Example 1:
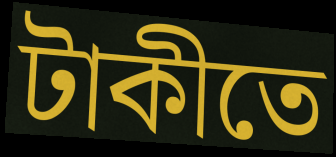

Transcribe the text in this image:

টাকীতে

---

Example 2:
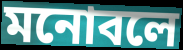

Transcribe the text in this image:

মনোবলে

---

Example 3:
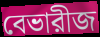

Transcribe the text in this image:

বেভারীজ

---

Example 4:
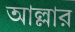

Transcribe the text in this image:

আল্লার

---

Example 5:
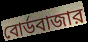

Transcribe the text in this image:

বোর্ডবাজার